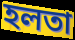
হলতা